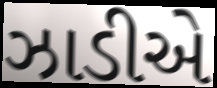
ઝાડીએ